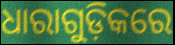
ଧାରାଗୁଡ଼ିକରେ